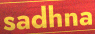
sadhna